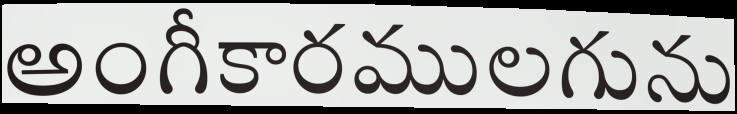
అంగీకారములగును